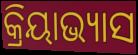
କ୍ରିୟାଭ୍ୟାସ